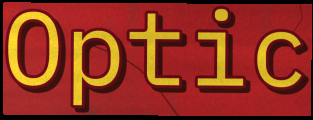
Optic